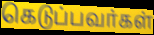
கெடுப்பவர்கள்